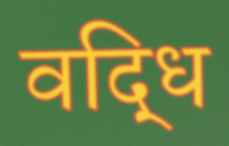
वद्धि